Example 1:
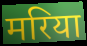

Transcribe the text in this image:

मरिया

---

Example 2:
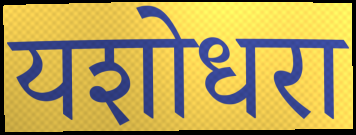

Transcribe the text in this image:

यशोधरा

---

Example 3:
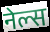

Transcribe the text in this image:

नेल्स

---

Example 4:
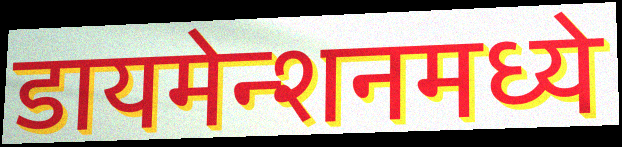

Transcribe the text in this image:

डायमेन्शनमध्ये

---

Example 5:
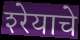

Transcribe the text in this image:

श्रेयाचे